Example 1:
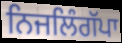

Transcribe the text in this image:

ਨਿਜਲਿੰਗੱਪਾ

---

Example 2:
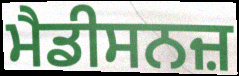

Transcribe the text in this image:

ਮੈਡੀਸਨਜ਼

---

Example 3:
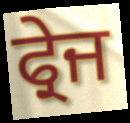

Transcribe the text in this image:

ਫ੍ਰੇਜ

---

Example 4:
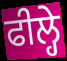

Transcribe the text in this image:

ਫੀਲ੍ਹੇ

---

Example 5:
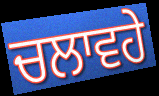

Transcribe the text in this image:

ਚਲਾਵਹੇ